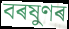
বৰষুণৰ